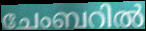
ചേംബറിൽ